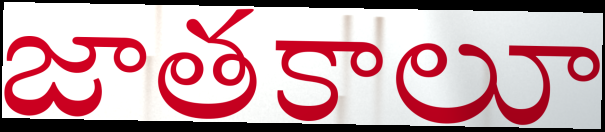
జాతకాలూ